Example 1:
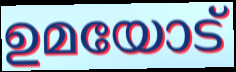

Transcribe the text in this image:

ഉമയോട്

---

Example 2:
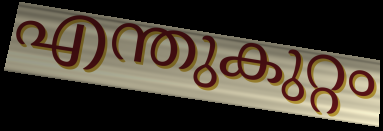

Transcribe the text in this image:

എന്തുകുറ്റം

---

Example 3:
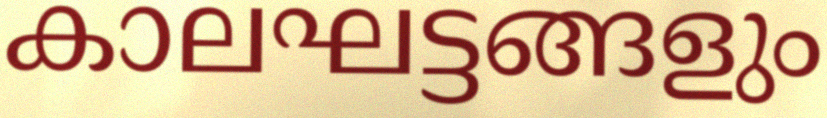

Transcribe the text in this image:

കാലഘട്ടങ്ങളും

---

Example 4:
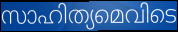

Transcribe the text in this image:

സാഹിത്യമെവിടെ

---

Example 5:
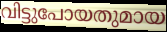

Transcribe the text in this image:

വിട്ടുപോയതുമായ